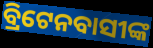
ବ୍ରିଟେନବାସୀଙ୍କ